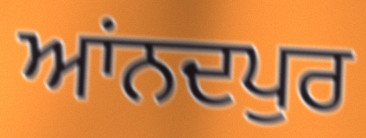
ਆਂਨਦਪੁਰ